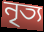
নৃত্য